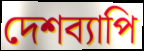
দেশব্যাপি